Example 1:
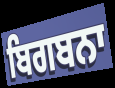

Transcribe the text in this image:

ਬਿਗਬਨਾ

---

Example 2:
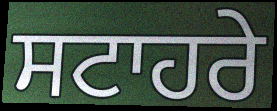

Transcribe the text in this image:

ਸਟਾਹਰੇ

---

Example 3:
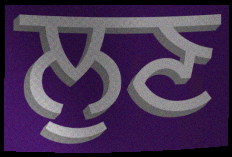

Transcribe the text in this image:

ਲੁਣ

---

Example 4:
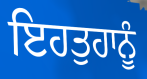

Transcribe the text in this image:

ਇਹਤੁਹਾਨੂੰ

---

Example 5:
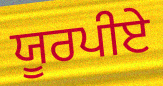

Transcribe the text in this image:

ਯੂਰਪੀਏ